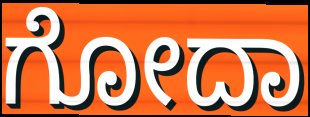
ಗೋದಾ